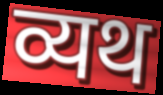
व्यथ